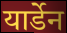
यार्डेन